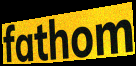
fathom